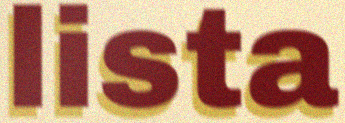
lista